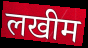
लखीम